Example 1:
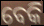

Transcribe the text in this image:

ବେକି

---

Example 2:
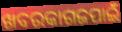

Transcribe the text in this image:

ଖବରକାଗଜପାଇଁ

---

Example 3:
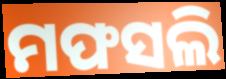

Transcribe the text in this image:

ମଫସଲି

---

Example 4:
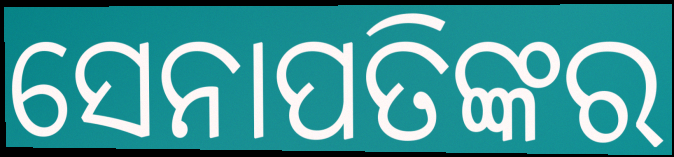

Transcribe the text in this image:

ସେନାପତିଙ୍କର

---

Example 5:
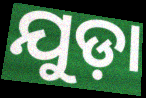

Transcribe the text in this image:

ଯୁଡ଼ା